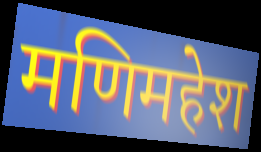
मणिमहेश